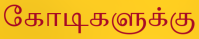
கோடிகளுக்கு